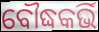
ବୌଦ୍ଧକର୍ଭି